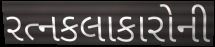
રત્નકલાકારોની